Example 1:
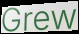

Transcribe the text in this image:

Grew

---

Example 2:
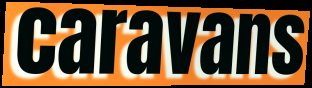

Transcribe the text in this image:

caravans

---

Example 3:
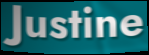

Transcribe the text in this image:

Justine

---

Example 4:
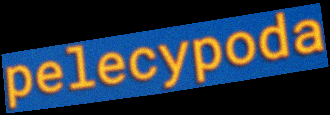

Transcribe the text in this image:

pelecypoda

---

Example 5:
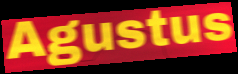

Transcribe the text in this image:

Agustus